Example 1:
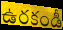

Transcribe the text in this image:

ఉరకండీ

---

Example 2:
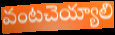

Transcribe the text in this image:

వంటచెయ్యాలి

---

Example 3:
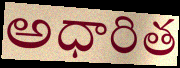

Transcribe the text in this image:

అధారిత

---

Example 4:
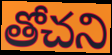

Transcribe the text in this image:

తోచని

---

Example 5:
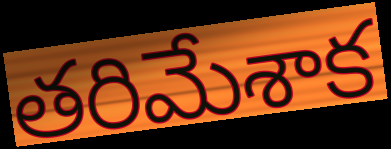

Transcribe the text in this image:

తరిమేశాక